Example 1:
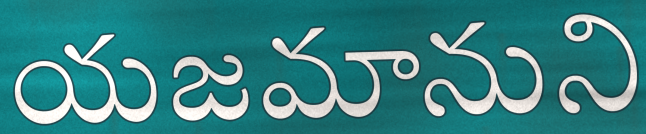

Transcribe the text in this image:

యజమానుని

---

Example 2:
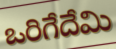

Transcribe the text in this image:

ఒరిగేదేమి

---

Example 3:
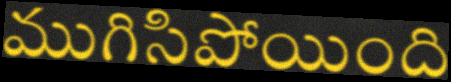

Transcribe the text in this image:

ముగిసిపోయింది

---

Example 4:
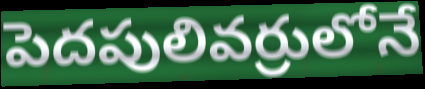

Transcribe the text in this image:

పెదపులివర్రులోనే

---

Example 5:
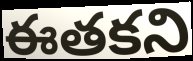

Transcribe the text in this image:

ఈతకని